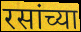
रसांच्या